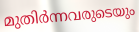
മുതിർന്നവരുടെയും